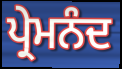
ਪ੍ਰੇਮਨੰਦ